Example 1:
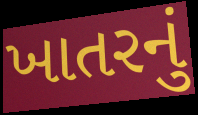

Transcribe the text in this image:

ખાતરનું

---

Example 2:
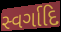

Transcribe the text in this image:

સ્વર્ગાદિ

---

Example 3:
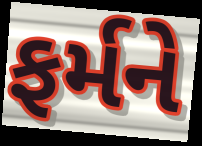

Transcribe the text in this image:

ફર્મને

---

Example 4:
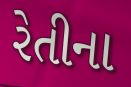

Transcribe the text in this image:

રેતીના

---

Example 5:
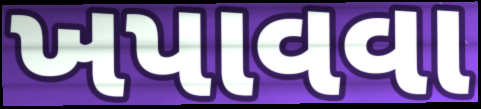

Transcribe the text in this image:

ખપાવવા